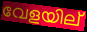
വേളയില്